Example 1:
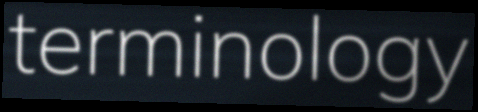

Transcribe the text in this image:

terminology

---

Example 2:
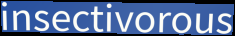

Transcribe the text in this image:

insectivorous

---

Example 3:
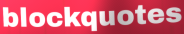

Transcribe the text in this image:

blockquotes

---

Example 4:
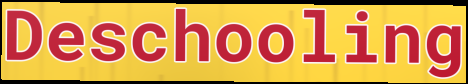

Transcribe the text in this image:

Deschooling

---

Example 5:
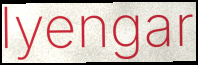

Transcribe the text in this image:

Iyengar